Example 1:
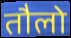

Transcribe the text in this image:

तौलो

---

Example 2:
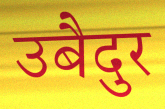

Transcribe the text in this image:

उबैदुर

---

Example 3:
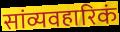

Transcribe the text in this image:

सांव्यवहारिकं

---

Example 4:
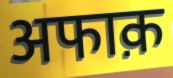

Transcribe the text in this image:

अफाक़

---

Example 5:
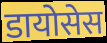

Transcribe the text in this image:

डायोसेस